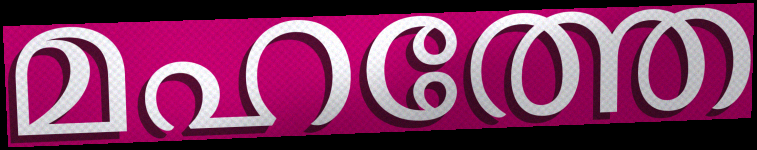
മഹത്തേ